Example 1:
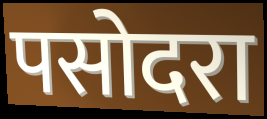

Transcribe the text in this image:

पसोदरा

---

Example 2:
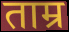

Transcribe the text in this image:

ताम्र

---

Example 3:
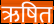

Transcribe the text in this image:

ऋषित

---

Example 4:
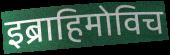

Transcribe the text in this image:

इब्राहिमोविच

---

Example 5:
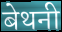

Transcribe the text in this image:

बेथनी